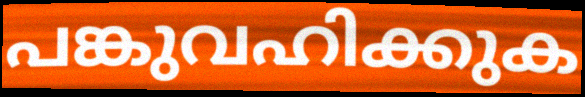
പങ്കുവഹിക്കുക